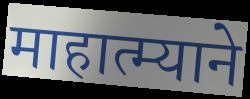
माहात्म्याने